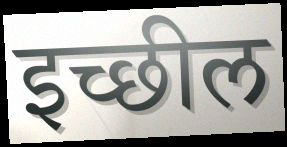
इच्छील